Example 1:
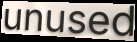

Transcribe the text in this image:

unused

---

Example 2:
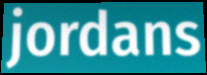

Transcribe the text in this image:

jordans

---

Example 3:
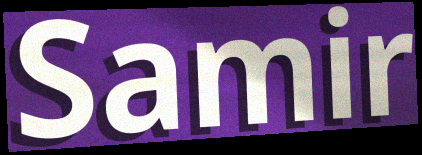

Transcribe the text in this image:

Samir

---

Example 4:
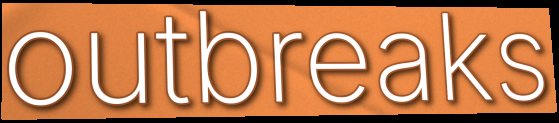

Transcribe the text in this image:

outbreaks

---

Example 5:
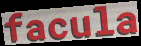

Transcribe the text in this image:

facula